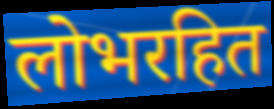
लोभरहित